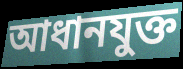
আধানযুক্ত